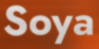
Soya